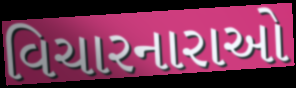
વિચારનારાઓ